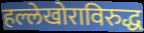
हल्लेखोराविरुद्ध